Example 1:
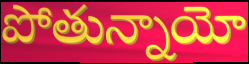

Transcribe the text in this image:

పోతున్నాయో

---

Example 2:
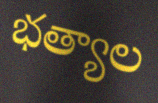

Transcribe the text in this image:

భత్యాల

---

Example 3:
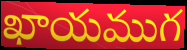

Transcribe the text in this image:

ఖాయముగ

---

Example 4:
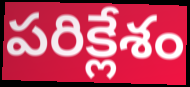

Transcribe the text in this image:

పరిక్లేశం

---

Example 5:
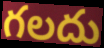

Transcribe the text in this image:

గలదు